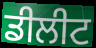
ਡੀਲੀਟ